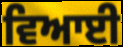
ਵਿਆਈ